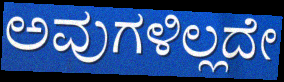
ಅವುಗಳಿಲ್ಲದೇ